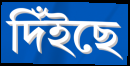
দিঁইছে